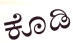
ಕೊಡಿ